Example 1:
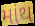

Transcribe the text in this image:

માંથ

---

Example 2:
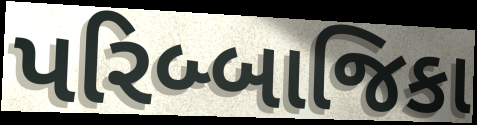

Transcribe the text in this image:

પરિબ્બાજિકા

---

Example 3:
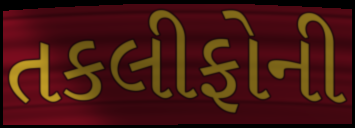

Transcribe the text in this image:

તકલીફોની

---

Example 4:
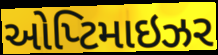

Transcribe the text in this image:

ઓપ્ટિમાઇઝર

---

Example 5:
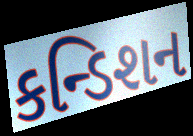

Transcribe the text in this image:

કન્ડિશન